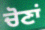
ਚੋਣਾਂ